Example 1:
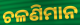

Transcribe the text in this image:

ଚଳଣିମାନ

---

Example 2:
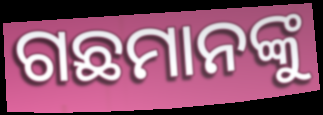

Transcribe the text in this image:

ଗଛମାନଙ୍କୁ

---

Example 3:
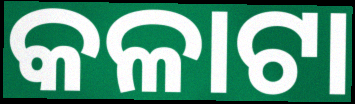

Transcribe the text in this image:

କଳାଟା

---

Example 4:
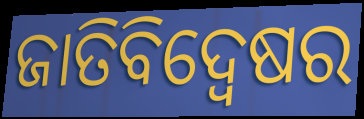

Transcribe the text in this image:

ଜାତିବିଦ୍ୱେଷର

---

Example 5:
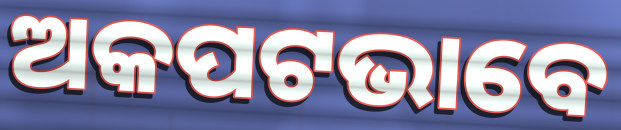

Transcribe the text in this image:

ଅକପଟଭାବେ